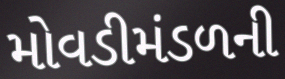
મોવડીમંડળની